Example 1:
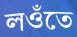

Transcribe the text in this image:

লওঁতে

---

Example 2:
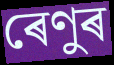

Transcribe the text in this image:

ৰেণুৰ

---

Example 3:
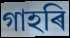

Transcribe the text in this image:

গাহৰি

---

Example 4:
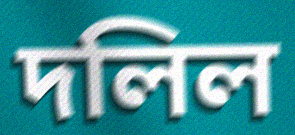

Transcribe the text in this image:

দলিল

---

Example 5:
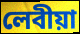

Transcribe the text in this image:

লেবীয়া